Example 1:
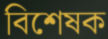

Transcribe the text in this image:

বিশেষক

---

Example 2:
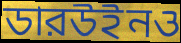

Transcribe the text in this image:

ডারউইনও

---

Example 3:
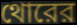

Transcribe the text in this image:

থোরের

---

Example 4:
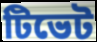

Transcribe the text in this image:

টিভেট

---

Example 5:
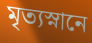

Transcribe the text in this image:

মৃত্যস্নানে